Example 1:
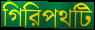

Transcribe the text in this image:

গিরিপথটি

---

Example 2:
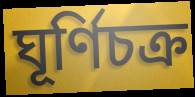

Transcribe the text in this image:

ঘূর্ণিচক্র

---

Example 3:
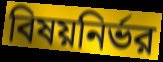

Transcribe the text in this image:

বিষয়নির্ভর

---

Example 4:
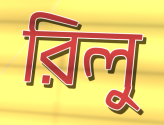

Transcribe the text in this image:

রিলু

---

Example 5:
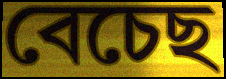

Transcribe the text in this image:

বেচেছ